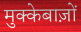
मुक्केबाज़ों